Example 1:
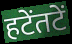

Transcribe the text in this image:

हटेंतटें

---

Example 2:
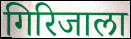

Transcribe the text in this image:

गिरिजाला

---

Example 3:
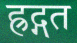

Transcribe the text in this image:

ह्रद्गत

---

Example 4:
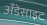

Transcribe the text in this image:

अँडेसाइट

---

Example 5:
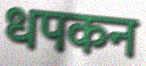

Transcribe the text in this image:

धपकन